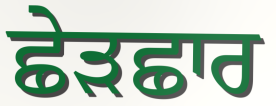
ਛੇੜਛਾਰ